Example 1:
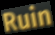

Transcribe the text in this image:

Ruin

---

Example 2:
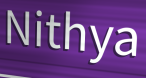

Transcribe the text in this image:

Nithya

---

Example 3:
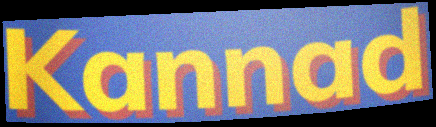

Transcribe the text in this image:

Kannad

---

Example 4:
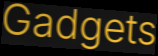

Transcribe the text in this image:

Gadgets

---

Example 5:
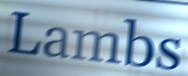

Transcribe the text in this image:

Lambs